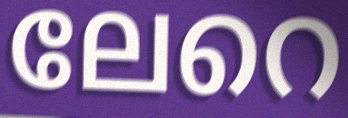
ലേറെ